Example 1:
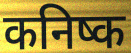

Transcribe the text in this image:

कनिष्क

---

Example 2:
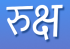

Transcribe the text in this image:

रुक्ष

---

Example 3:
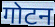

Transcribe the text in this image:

गोटन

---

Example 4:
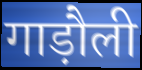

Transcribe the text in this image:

गाड़ौली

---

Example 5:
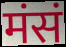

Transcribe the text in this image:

मंसं